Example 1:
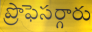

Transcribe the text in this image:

ప్రొఫెసర్గారు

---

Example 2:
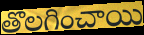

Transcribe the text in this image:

తొలగించాయి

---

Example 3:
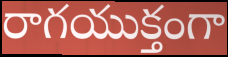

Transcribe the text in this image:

రాగయుక్తంగా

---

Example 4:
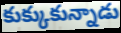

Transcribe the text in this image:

కుక్కుకున్నాడు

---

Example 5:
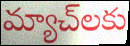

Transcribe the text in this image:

మ్యాచ్‌లకు